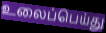
உலைப்பெய்து